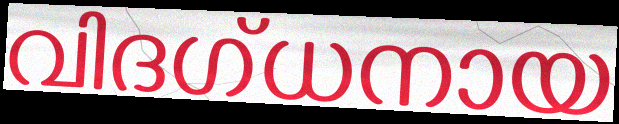
വിദഗ്ധനായ